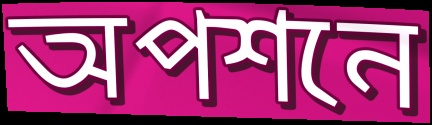
অপশনে